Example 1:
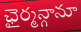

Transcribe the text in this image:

ఛైర్మన్గానూ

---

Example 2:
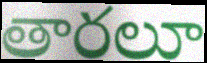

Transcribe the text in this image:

తారలూ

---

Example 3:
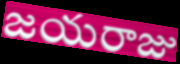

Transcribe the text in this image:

జయరాజు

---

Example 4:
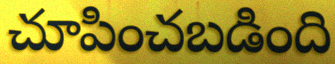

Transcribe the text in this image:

చూపించబడింది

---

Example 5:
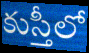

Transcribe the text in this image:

కుస్తీలో